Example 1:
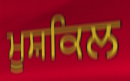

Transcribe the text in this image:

ਮੂਸ਼ਕਿਲ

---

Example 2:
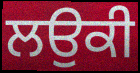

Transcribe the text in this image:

ਲਉਕੀ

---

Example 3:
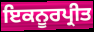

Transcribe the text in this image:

ਇਕਨੂਰਪ੍ਰੀਤ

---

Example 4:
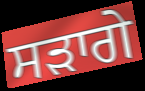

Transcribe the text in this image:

ਸੜਾਗੇ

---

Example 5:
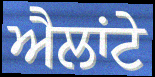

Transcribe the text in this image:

ਐਲਾਂਟੇ